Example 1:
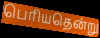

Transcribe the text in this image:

பெரியதென்று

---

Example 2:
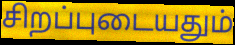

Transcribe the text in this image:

சிறப்புடையதும்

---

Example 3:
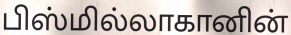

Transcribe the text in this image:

பிஸ்மில்லாகானின்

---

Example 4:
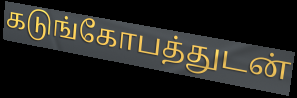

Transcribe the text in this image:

கடுங்கோபத்துடன்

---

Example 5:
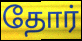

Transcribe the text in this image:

தோர்